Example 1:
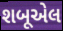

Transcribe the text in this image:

શબૂએલ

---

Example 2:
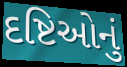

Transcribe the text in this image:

દષ્ટિઓનું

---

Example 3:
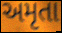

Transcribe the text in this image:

અમૃતા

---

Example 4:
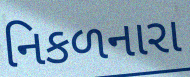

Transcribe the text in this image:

નિકળનારા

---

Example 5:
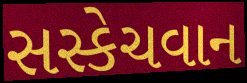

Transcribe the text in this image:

સસ્કેચવાન